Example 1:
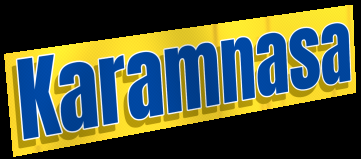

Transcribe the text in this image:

Karamnasa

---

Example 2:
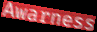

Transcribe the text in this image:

Awarness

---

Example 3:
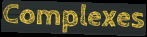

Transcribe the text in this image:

Complexes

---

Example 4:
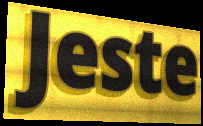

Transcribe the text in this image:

Jeste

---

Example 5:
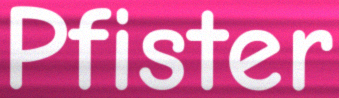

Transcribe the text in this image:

Pfister